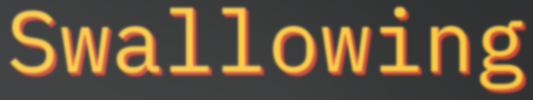
Swallowing